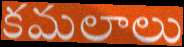
కమలాలు